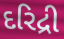
દરિદ્રી